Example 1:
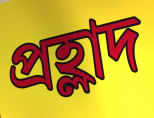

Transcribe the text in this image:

প্ৰহ্লাদ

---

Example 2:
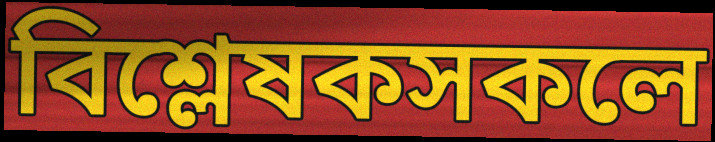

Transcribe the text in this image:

বিশ্লেষকসকলে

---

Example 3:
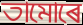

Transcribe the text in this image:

তামোৰে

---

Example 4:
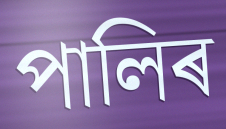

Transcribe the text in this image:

পালিৰ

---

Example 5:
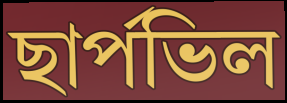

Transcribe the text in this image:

ছাৰ্পভিল